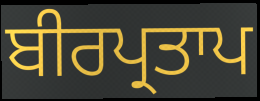
ਬੀਰਪ੍ਰਤਾਪ